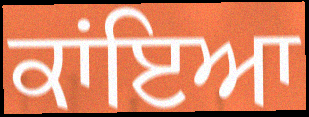
ਕਾਂਇਆ